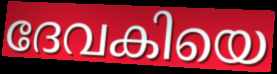
ദേവകിയെ